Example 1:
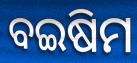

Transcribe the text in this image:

ବଇଷିମ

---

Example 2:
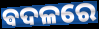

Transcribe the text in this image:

ଵଦଳରେ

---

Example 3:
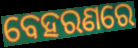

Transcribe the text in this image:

ବେହରଣରେ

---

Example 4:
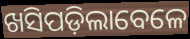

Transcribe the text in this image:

ଖସିପଡ଼ିଲାବେଳେ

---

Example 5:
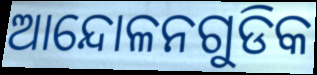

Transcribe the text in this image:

ଆନ୍ଦୋଳନଗୁଡିକ